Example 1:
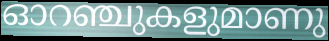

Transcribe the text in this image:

ഓറഞ്ചുകളുമാണു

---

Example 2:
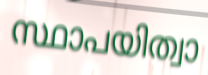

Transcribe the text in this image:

സ്ഥാപയിത്വാ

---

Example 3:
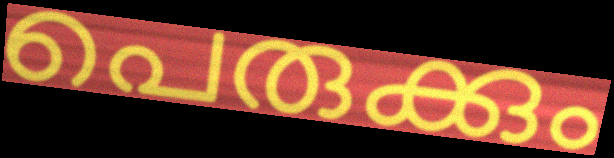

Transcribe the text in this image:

പെരുക്കും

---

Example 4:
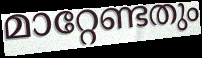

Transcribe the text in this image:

മാറ്റേണ്ടതും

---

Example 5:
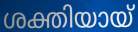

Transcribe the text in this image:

ശക്തിയായ്